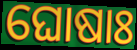
ଘୋଷାଃ